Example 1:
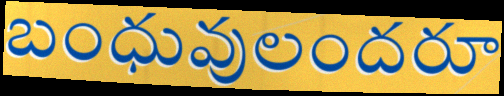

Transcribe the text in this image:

బంధువులందరూ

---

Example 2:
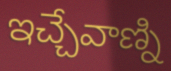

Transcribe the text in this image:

ఇచ్చేవాణ్ని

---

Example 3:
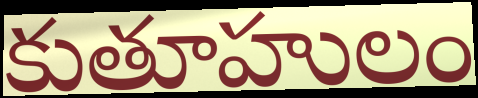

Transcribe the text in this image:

కుతూహులం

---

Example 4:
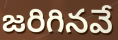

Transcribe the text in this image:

జరిగినవే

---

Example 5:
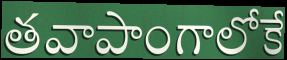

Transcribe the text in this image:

తవాపాంగాలోకే